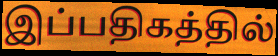
இப்பதிகத்தில்